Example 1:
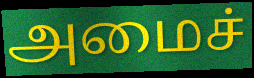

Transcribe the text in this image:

அமைச்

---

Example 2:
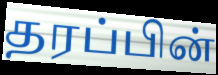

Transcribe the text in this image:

தரப்பின்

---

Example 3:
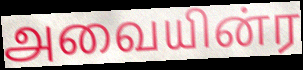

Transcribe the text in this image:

அவையின்ர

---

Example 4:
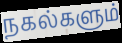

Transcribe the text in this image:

நகல்களும்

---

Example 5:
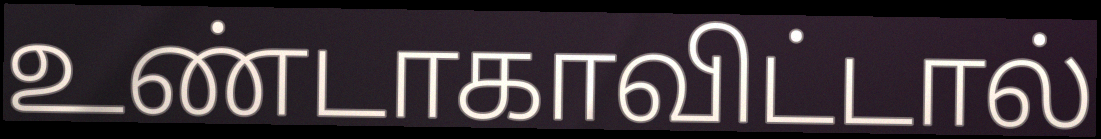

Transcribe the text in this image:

உண்டாகாவிட்டால்